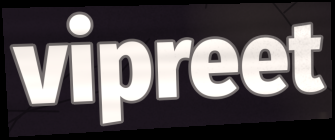
vipreet